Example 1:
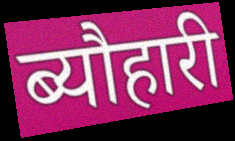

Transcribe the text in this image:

ब्यौहारी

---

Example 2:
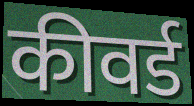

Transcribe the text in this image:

कीवर्ड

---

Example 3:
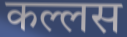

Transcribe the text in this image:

कल्लस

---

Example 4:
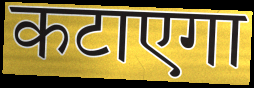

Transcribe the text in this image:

कटाएगा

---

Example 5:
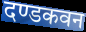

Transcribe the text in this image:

दण्डकवन